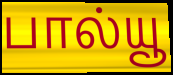
பால்யூ